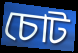
চোট